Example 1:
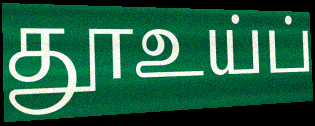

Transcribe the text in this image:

தூஉய்ப்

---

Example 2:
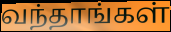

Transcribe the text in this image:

வந்தாங்கள்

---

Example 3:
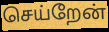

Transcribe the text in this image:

செய்றேன்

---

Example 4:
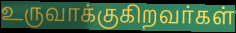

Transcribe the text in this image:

உருவாக்குகிறவர்கள்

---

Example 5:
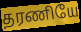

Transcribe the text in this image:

தரணியே